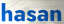
hasan